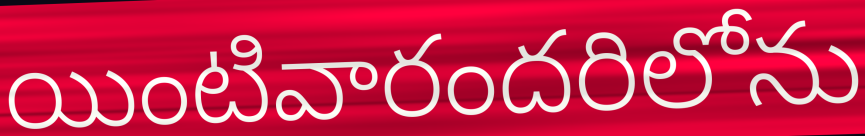
యింటివారందరిలోను